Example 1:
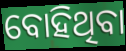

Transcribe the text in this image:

ବୋହିଥିବା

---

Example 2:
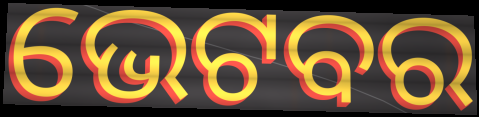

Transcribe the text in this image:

ଭେଟବର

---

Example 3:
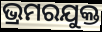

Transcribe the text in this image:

ଭ୍ରମରଯୁକ୍ତ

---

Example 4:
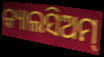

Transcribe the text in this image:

କ୍ୟାଲସିଅମ୍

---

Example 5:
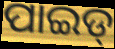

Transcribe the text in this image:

ପାଇଡ୍